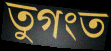
তুগংত